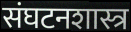
संघटनशास्त्र